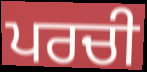
ਪਰਚੀ